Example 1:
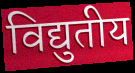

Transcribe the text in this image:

विद्युतीय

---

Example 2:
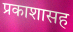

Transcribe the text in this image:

प्रकाशासह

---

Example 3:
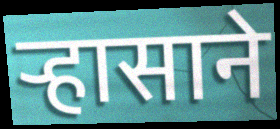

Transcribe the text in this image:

ऱ्हासाने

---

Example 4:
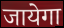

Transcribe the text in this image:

जायेगा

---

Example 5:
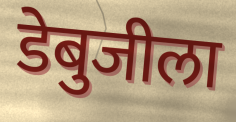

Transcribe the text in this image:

डेबुजीला